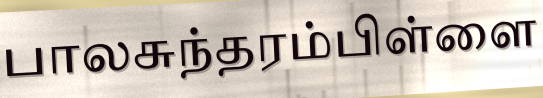
பாலசுந்தரம்பிள்ளை